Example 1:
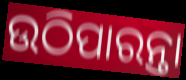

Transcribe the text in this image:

ଉଠିପାରନ୍ତା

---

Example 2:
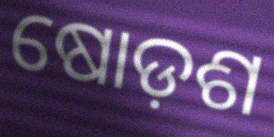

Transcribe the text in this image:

ଷୋଡ଼ଶ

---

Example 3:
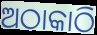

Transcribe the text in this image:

ଅଠାକାଠି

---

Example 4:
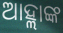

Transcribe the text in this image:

ଆହ୍ଲାଙ୍କ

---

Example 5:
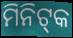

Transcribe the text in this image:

ମିନିଟ୍‍କ